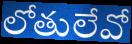
లోతులేవో